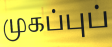
முகப்புப்